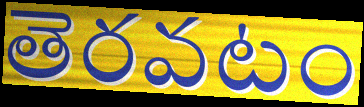
తెరవటం